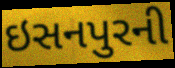
ઇસનપુરની